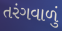
તરંગવાળું